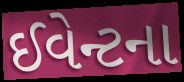
ઈવેન્ટના